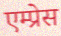
एम्प्रेस